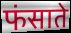
फंसाते